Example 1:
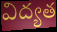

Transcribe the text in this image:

విద్యత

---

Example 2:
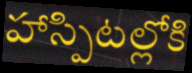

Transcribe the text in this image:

హాస్పిటల్లోకి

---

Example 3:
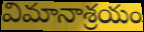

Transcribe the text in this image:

విమానాశ్రయం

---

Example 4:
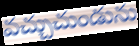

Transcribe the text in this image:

వచ్చుచుండును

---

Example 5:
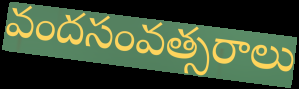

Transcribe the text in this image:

వందసంవత్సరాలు